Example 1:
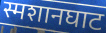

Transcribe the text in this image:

स्मशानघाट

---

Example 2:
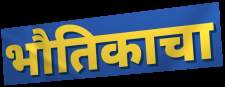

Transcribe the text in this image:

भौतिकाचा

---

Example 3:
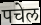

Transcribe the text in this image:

पचेल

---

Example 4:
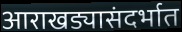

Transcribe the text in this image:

आराखड्यासंदर्भात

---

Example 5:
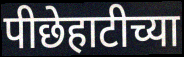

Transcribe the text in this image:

पीछेहाटीच्या